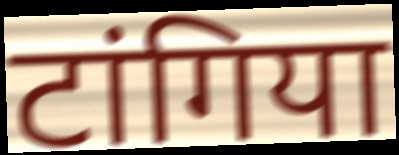
टांगिया